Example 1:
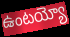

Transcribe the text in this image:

ఉంటయ్యో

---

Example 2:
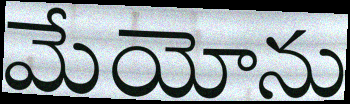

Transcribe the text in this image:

మేయోను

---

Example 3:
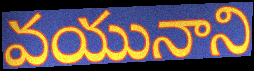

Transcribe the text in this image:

వయునాని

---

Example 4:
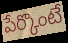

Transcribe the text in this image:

పేర్కొంటే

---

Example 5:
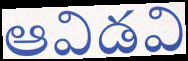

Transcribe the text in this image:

ఆవిడవి